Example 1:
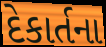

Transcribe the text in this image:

દેકાર્તના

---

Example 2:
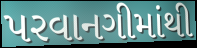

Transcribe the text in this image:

પરવાનગીમાંથી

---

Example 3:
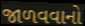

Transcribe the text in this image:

જાળવવાનો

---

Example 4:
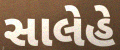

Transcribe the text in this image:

સાલેહે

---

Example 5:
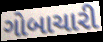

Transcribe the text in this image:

ગોબાચારી